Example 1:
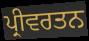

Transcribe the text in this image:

ਪ੍ਰੀਵਰਤਨ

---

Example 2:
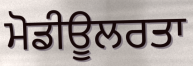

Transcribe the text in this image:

ਮੋਡੀਊਲਰਤਾ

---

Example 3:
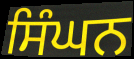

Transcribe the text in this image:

ਸਿੰਘਨ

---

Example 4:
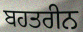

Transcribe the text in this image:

ਬਹਤਰੀਨ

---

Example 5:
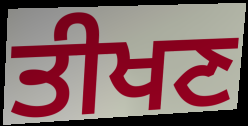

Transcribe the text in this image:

ਤੀਖਣ